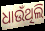
ଧାଉଁଥିଲି